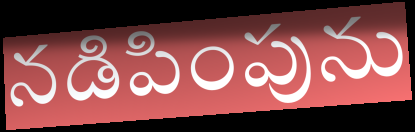
నడిపింపును